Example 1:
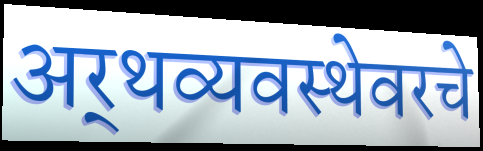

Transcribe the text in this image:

अर्थव्यवस्थेवरचे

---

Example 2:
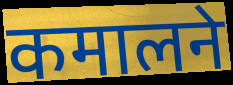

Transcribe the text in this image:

कमालने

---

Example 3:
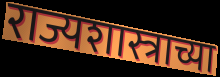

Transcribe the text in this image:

राज्यशास्त्राच्या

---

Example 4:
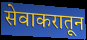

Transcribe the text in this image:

सेवाकरातून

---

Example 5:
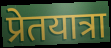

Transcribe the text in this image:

प्रेतयात्रा